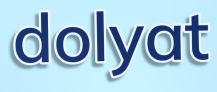
dolyat